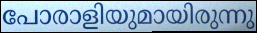
പോരാളിയുമായിരുന്നു